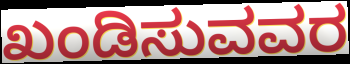
ಖಂಡಿಸುವವರ